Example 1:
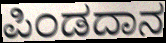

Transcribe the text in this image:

ಪಿಂಡದಾನ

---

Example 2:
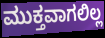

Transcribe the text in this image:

ಮುಕ್ತವಾಗಲಿಲ್ಲ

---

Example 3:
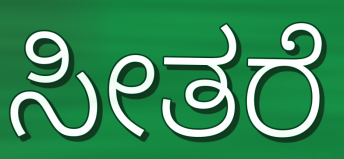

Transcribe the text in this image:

ಸೀತರೆ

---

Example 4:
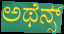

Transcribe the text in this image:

ಅಥೆನ್ಸ್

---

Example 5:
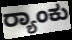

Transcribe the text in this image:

ರ್‍ಯಾಂಕು